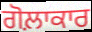
ਗੋਲ਼ਾਕਾਰ